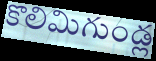
కొలిమిగుండ్ల